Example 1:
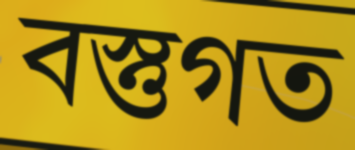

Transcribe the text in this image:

বস্তুগত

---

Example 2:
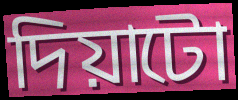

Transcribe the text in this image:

দিয়াটো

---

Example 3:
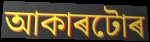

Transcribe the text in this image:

আকাৰটোৰ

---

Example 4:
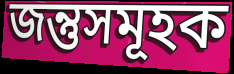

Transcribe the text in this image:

জন্তুসমূহক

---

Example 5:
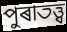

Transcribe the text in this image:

পুৰাতত্ত্ব